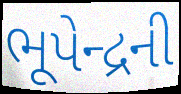
ભૂપેન્દ્રની